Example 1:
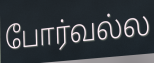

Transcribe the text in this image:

போர்வல்ல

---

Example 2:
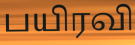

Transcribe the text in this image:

பயிரவி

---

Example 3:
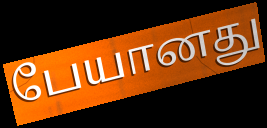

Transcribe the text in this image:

பேயானது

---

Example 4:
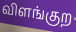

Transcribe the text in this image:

விளங்குற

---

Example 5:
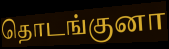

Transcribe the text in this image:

தொடங்குனா